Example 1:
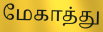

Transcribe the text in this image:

மேகாத்து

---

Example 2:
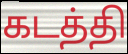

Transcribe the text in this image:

கடத்தி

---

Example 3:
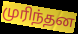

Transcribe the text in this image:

முரிந்தன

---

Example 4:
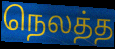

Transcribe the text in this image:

நெலத்த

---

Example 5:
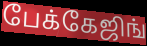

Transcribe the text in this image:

பேக்கேஜிங்